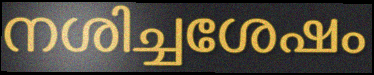
നശിച്ചശേഷം